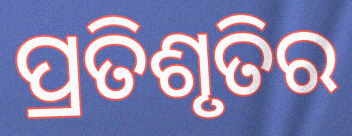
ପ୍ରତିଶୃତିର